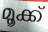
മൂക്ക്